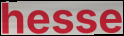
hesse